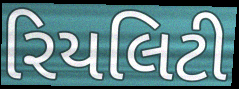
રિયલિટી